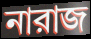
নারাজ